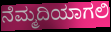
ನೆಮ್ಮದಿಯಾಗಲಿ